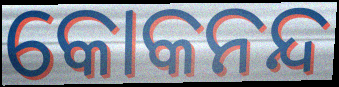
କୋକନନ୍ଦ